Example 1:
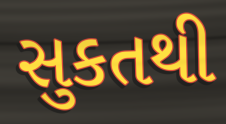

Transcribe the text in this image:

સુકતથી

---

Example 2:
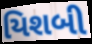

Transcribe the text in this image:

યિશબી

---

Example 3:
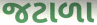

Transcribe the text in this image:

જટાળા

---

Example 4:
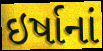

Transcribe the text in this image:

ઇર્ષાનાં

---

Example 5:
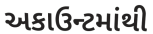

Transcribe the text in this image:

અકાઉન્ટમાંથી